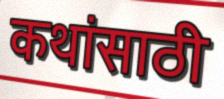
कथांसाठी